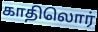
காதிலொர்